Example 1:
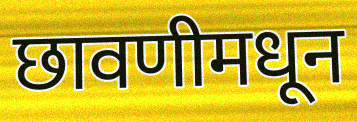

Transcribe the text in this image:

छावणीमधून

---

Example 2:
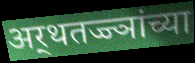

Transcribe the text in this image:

अर्थतज्ज्ञांच्या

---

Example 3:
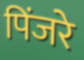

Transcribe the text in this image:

पिंजरे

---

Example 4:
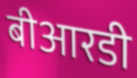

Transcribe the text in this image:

बीआरडी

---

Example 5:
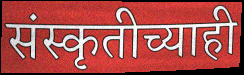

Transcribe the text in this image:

संस्कृतीच्याही